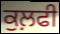
ਕੁਲ਼ਫੀ